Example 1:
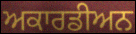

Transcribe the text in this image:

ਅਕਾਰਡੀਅਨ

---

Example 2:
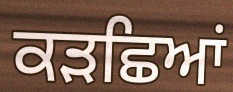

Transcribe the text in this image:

ਕੜਛਿਆਂ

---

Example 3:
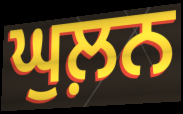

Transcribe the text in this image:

ਘੁਲ਼ਨ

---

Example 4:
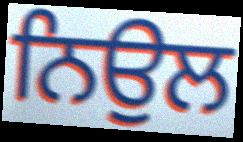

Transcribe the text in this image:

ਨਿਉਲ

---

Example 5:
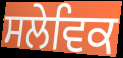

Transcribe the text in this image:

ਸਲੇਵਿਕ